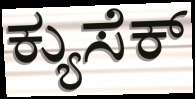
ಕ್ಯುಸೆಕ್